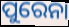
ପୁରେନା